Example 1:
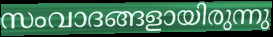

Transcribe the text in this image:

സംവാദങ്ങളായിരുന്നു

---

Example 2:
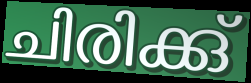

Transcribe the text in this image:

ചിരിക്കു്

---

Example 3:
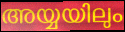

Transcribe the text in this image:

അയ്യയിലും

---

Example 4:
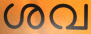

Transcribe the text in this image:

ശവ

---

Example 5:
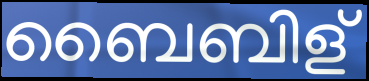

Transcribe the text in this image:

ബൈബിള്